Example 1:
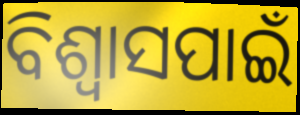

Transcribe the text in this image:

ବିଶ୍ୱାସପାଇଁ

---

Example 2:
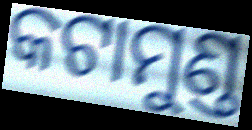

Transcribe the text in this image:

କଟାମୁଣ୍ଡ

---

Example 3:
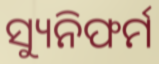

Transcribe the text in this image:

ସ୍ୟୁନିଫର୍ମ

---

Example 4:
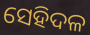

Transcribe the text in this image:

ସେହିଦଳ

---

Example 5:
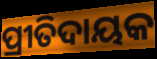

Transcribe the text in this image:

ପ୍ରୀତିଦାୟକ